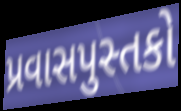
પ્રવાસપુસ્તકો